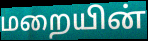
மறையின்